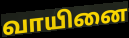
வாயினை